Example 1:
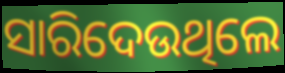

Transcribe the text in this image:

ସାରିଦେଉଥିଲେ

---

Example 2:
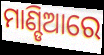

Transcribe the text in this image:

ମାଣ୍ଡିଆରେ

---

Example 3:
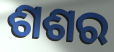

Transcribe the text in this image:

ଶଶର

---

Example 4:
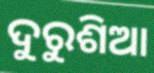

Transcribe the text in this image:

ଦୁରୁଶିଆ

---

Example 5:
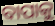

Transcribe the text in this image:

ବାପାକୁ